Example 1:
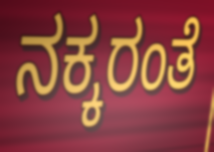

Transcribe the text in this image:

ನಕ್ಕರಂತೆ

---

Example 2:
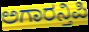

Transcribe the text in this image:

ಅಗಾರನ್ತಿಪಿ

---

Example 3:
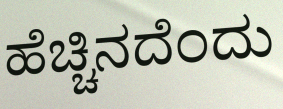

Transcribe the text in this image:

ಹೆಚ್ಚಿನದೆಂದು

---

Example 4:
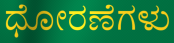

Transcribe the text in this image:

ಧೋರಣೆಗಳು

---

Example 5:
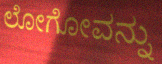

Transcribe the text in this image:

ಲೋಗೋವನ್ನು